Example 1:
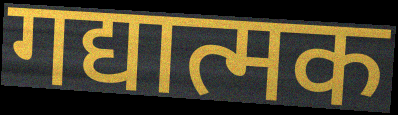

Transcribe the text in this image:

गद्यात्मक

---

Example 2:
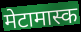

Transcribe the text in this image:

मेटामास्क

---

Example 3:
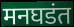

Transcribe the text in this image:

मनघडंत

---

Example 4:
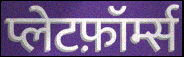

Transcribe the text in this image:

प्लेटफ़ॉर्म्स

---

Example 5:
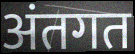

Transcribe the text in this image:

अंतगत